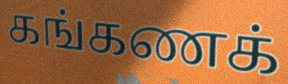
கங்கணக்